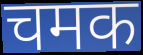
चमक